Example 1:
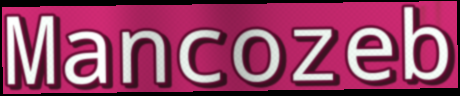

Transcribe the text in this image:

Mancozeb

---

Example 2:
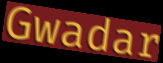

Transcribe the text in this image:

Gwadar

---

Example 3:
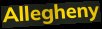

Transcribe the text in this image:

Allegheny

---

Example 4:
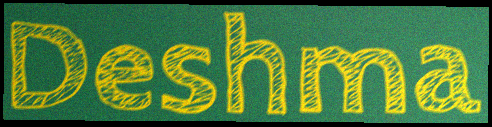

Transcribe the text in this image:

Deshma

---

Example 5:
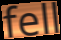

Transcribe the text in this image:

fell